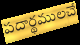
పదార్థములచే